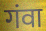
गंवा